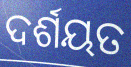
ଦର୍ଶୟତ